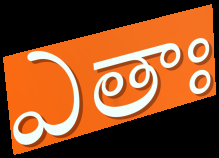
ఎతాః